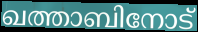
ഖത്താബിനോട്